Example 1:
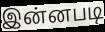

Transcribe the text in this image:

இன்னபடி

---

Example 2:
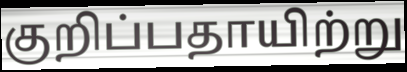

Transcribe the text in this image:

குறிப்பதாயிற்று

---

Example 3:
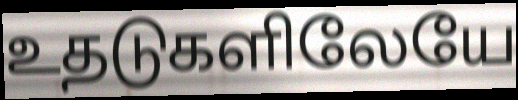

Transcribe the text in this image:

உதடுகளிலேயே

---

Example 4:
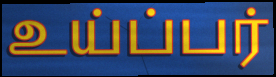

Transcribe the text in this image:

உய்ப்பர்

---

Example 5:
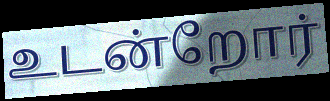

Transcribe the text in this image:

உடன்றோர்